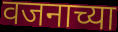
वजनाच्या